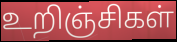
உறிஞ்சிகள்